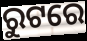
ରୁଟରେ